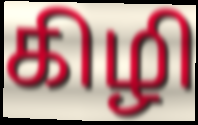
கிழி